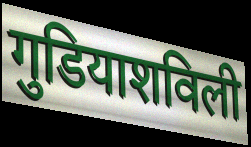
गुडियाशविली